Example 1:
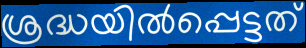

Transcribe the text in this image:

ശ്രദ്ധയിൽപ്പെട്ടത്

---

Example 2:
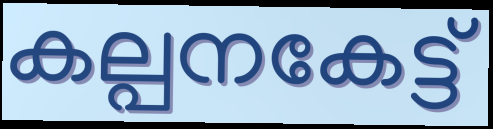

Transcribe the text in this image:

കല്പനകേട്ട്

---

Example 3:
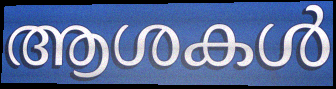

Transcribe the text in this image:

ആശകൾ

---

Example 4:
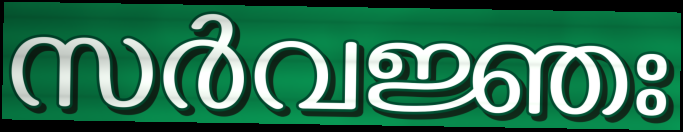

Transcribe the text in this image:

സർവജ്ഞഃ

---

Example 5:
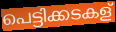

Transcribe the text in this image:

പെട്ടിക്കടകള്